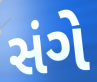
સંગે